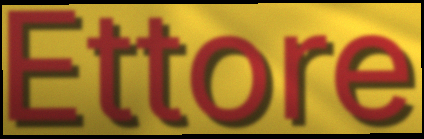
Ettore